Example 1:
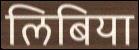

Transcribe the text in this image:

लिबिया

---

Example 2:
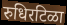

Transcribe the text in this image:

रुधिरटिळा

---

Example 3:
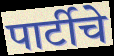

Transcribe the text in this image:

पार्टीचे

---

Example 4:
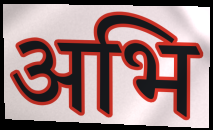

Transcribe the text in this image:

अभि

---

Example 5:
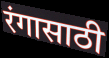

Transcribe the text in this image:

रंगासाठी